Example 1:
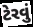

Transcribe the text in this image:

ટેરવું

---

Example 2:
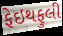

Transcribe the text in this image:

ફેઇથફુલી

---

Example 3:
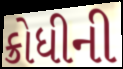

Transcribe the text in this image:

ક્રોધીની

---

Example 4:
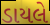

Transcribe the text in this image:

ડાયલે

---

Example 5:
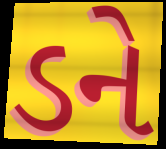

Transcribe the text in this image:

ડને